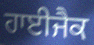
ਹਾਈਜੈਕ